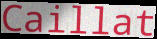
Caillat